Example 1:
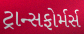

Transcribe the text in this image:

ટ્રાન્સફોર્મર્સ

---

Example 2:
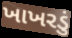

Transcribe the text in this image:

ખાખરડું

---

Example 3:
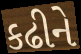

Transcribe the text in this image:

કઢીને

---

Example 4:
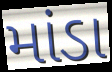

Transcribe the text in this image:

માંડા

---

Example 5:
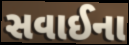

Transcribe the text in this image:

સવાઈના